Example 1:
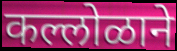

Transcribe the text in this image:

कल्लोळाने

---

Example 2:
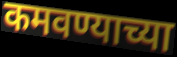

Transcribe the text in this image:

कमवण्याच्या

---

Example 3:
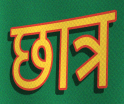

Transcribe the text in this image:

छात्र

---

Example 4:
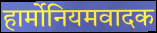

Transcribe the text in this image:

हार्मोनियमवादक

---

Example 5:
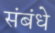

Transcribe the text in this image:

संबंधे